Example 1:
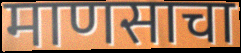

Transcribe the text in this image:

माणसाचा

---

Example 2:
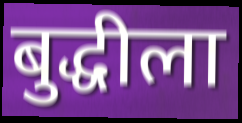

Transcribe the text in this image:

बुद्धीला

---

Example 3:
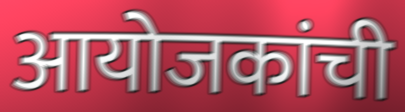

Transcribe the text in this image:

आयोजकांची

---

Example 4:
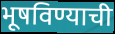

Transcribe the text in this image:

भूषविण्याची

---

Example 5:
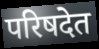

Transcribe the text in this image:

परिषदेत